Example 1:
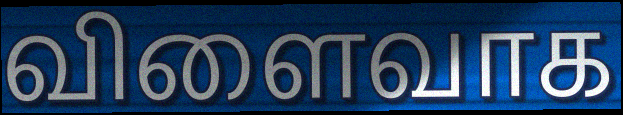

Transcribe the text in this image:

விளைவாக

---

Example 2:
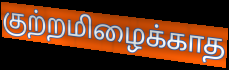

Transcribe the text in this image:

குற்றமிழைக்காத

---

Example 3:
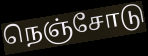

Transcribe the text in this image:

நெஞ்சோடு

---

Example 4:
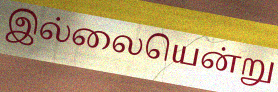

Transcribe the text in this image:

இல்லையென்று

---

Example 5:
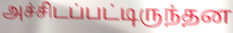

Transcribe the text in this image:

அச்சிடப்பட்டிருந்தன